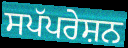
ਸਪੱਪਰੇਸ਼ਨ